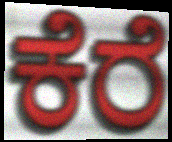
ಕೆರೆ